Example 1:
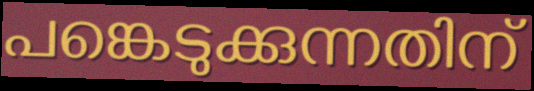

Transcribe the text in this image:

പങ്കെടുക്കുന്നതിന്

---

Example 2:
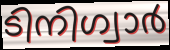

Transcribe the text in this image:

ടിനിഗ്വാർ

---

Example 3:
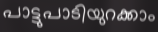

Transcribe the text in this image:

പാട്ടുപാടിയുറക്കാം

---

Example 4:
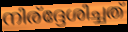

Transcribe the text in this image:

നിര്ദ്ദേശിച്ചത്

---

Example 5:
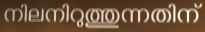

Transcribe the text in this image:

നിലനിറുത്തുന്നതിന്